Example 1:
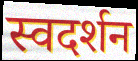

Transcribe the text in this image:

स्वदर्शन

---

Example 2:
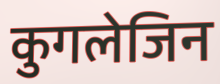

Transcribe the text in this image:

कुगलेजिन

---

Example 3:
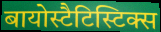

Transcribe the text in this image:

बायोस्टैटिस्टिक्स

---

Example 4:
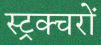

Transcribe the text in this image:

स्ट्रक्चरों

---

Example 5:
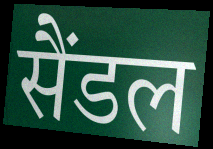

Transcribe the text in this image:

सैंडल